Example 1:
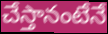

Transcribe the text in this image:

చేస్తానంటేనే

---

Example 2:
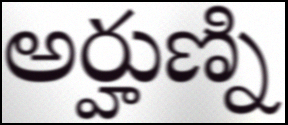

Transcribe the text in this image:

అర్హుణ్ని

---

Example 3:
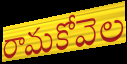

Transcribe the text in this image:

రామకోవెల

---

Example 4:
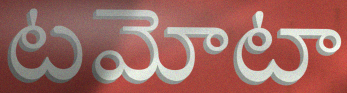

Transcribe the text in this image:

టమోటా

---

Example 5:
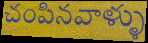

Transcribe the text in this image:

చంపినవాళ్ళు